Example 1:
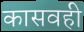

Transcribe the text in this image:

कासवही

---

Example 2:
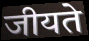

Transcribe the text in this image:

जीयते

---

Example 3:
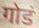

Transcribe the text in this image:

गोडं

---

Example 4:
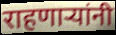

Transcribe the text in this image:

राहणार्‍यांनी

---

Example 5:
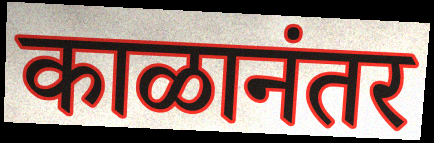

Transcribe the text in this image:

काळानंतर